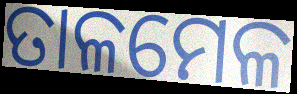
ତାଳମେଳ